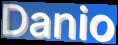
Danio